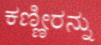
ಕಣ್ಣೀರನ್ನು